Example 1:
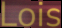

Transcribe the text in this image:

Lois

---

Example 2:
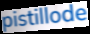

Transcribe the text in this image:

pistillode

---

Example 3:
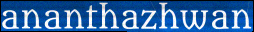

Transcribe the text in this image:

ananthazhwan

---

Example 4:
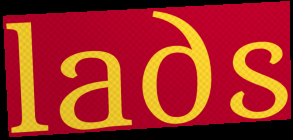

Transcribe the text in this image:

lads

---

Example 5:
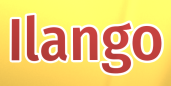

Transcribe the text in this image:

Ilango